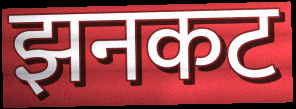
झनकट